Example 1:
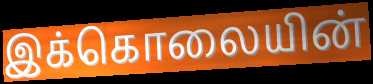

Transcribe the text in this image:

இக்கொலையின்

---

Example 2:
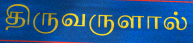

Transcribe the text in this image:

திருவருளால்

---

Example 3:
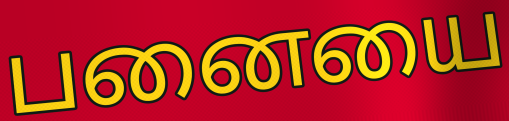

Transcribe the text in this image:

பனையை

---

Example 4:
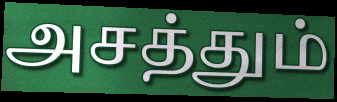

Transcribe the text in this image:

அசத்தும்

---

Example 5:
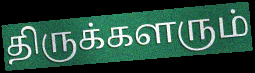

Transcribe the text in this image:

திருக்களரும்